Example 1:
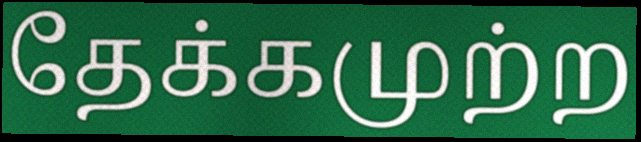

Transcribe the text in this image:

தேக்கமுற்ற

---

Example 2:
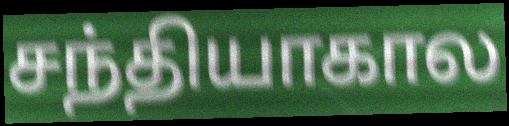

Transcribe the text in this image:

சந்தியாகால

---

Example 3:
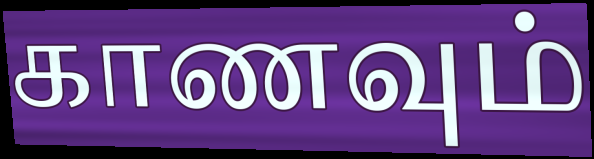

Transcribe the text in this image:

காணவும்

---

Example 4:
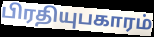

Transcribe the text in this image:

பிரதியுபகாரம்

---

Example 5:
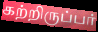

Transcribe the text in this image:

கற்றிருப்பர்